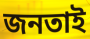
জনতাই